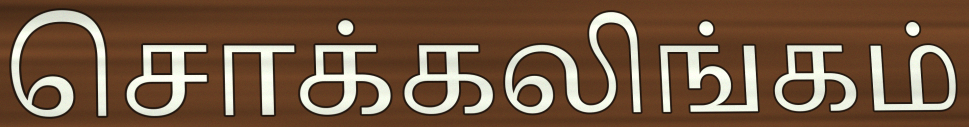
சொக்கலிங்கம்